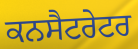
ਕਨਸੈਟਰੇਟਰ